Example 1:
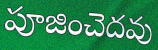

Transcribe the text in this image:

పూజించెదవు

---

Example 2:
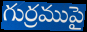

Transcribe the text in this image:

గుర్రముపై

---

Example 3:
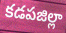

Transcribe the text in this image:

కడపజిల్లా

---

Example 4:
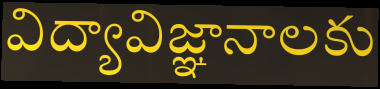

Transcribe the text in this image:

విద్యావిజ్ఞానాలకు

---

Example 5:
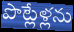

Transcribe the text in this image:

పొట్లేళ్లను